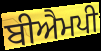
ਬੀਐਮਪੀ